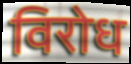
विरोध